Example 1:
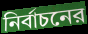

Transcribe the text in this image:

নির্বাচনের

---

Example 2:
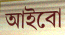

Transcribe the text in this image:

আইবো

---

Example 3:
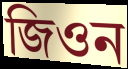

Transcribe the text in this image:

জিওন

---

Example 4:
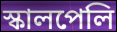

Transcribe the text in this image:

স্কালপেলি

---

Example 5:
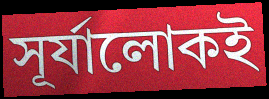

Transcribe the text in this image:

সূর্যালোকই